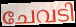
ചേവടി